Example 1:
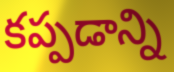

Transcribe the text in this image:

కప్పడాన్ని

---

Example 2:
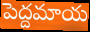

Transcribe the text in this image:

పెద్దమాయ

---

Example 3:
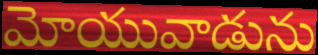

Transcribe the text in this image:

మోయువాడును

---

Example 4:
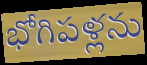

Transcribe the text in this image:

భోగిపళ్లను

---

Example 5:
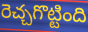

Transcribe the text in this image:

రెచ్చగొట్టింది